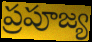
ప్రపూజ్య